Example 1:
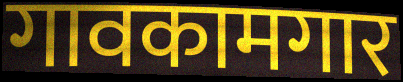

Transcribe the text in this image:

गावकामगार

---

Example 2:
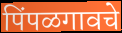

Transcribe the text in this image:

पिंपळगावचे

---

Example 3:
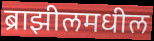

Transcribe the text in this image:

ब्राझीलमधील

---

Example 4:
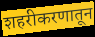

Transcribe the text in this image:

शहरीकरणातून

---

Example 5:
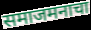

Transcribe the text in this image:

समाजमनाचा